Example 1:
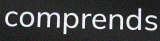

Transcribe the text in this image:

comprends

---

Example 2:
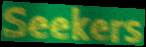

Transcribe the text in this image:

Seekers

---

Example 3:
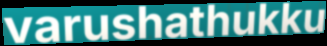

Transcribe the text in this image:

varushathukku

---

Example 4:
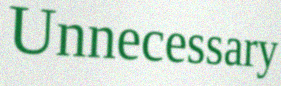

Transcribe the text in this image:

Unnecessary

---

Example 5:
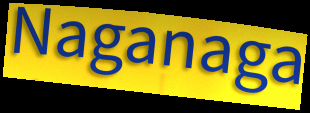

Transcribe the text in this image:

Naganaga